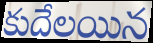
కుదేలయిన